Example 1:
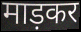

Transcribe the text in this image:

माड़कर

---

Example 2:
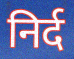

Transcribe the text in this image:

निर्द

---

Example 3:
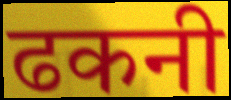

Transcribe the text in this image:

ढकनी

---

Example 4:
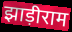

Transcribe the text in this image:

झाड़ीराम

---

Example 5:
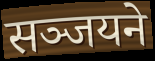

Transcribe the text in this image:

सञ्जयने